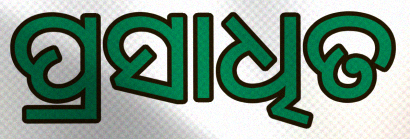
ପ୍ରସାଧିତ